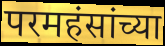
परमहंसांच्या